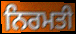
ਨਿਰਮਤੀ